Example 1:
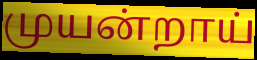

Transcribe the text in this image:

முயன்றாய்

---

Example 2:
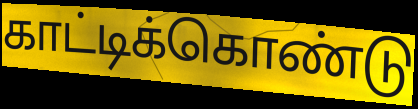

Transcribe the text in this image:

காட்டிக்கொண்டு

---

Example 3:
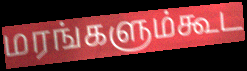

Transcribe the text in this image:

மரங்களும்கூட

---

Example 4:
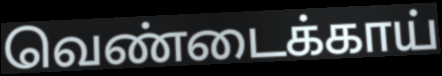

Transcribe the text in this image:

வெண்டைக்காய்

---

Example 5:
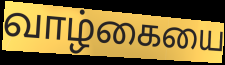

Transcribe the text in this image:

வாழ்கையை